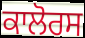
ਕਾਲੋਰਸ